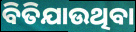
ବିତିଯାଉଥିବା